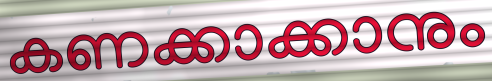
കണക്കാക്കാനും